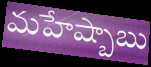
మహేష్బాబు